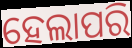
ହେଲାପରି